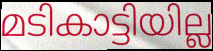
മടികാട്ടിയില്ല